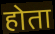
होता